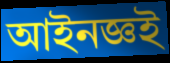
আইনজ্ঞই